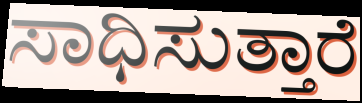
ಸಾಧಿಸುತ್ತಾರೆ